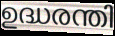
ഉദ്ധരന്തി